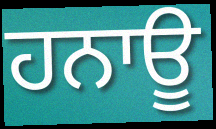
ਹਨਾਊ